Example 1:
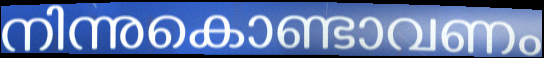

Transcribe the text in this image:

നിന്നുകൊണ്ടാവണം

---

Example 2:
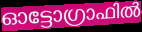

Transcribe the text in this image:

ഓട്ടോഗ്രാഫിൽ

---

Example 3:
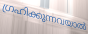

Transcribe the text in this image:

ഗ്രഹിക്കുന്നവയാൽ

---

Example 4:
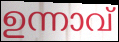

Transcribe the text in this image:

ഉന്നാവ്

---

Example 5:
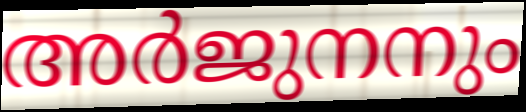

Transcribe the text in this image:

അർജുനനും